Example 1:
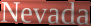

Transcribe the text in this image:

Nevada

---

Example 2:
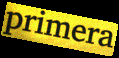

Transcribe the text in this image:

primera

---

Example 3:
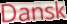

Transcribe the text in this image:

Dansk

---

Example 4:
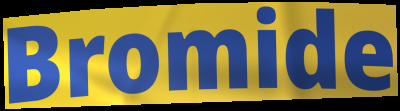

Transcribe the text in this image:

Bromide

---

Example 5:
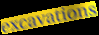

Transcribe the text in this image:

excavations